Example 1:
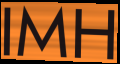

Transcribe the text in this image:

IMH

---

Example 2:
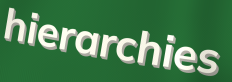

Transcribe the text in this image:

hierarchies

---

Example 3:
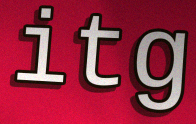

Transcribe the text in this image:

itg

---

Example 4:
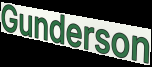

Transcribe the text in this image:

Gunderson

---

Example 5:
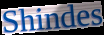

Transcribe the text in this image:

Shindes